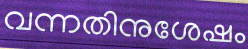
വന്നതിനുശേഷം